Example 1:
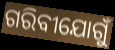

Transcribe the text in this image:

ଗରିବୀଯୋଗୁଁ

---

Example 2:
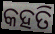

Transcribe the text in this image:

କହତି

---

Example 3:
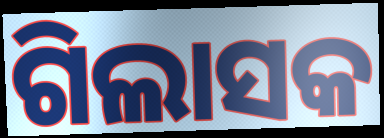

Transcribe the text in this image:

ଗିଲାସକ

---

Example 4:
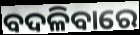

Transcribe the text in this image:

ବଦଳିବାରେ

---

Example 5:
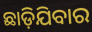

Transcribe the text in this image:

ଛାଡ଼ିଯିବାର